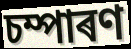
চম্পাৰণ